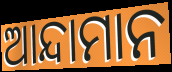
ଆନ୍ଦାମାନ